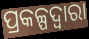
ପ୍ରକଳ୍ପଦ୍ୱାରା